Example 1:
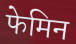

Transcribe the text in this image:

फेमिन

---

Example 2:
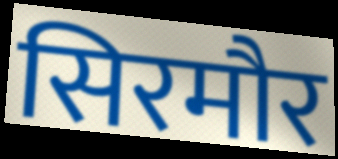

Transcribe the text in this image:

सिरमौर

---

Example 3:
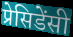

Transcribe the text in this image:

प्रेसिडेंसी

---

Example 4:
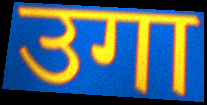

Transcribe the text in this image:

उगा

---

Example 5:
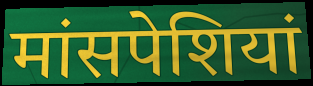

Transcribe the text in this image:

मांसपेशियां